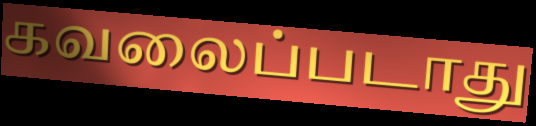
கவலைப்படாது